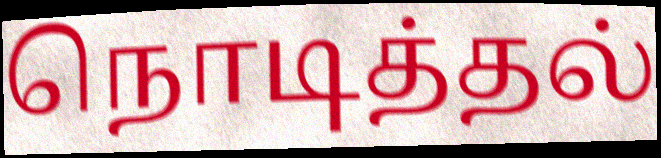
நொடித்தல்